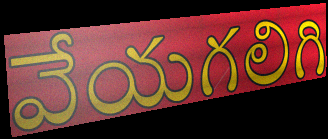
వేయగలిగి